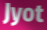
Jyot